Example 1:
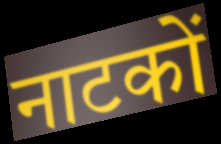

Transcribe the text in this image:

नाटकों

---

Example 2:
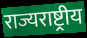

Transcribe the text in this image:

राज्यराष्ट्रीय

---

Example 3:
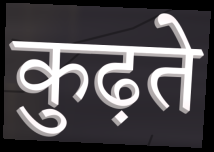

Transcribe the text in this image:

कुढ़ते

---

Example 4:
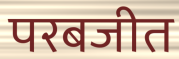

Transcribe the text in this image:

परबजीत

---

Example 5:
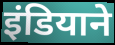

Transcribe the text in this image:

इंडियाने